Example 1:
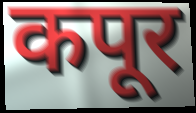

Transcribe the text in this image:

कपूर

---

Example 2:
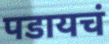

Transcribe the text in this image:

पडायचं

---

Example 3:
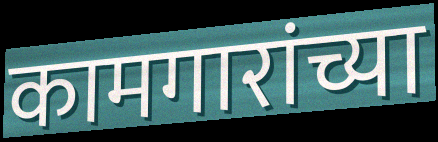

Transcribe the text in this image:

कामगारांच्या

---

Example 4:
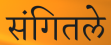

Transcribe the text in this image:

संगितले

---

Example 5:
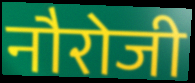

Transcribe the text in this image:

नौरोजी